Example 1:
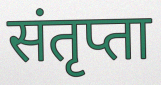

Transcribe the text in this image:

संतृप्ता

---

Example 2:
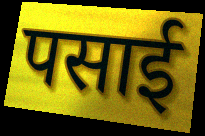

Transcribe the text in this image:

पसाई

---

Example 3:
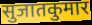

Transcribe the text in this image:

सुजातकुमार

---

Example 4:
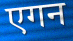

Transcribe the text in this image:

एगन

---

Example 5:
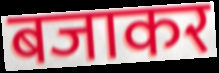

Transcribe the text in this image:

बजाकर